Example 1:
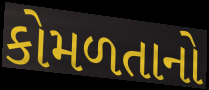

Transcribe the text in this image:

કોમળતાનો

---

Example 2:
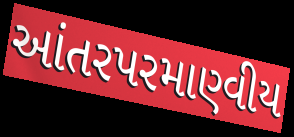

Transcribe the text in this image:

આંતરપરમાણ્વીય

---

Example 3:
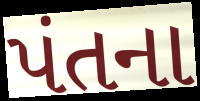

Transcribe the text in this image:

પંતના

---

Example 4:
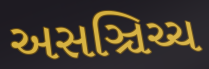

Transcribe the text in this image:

અસઞ્ચિચ્ચ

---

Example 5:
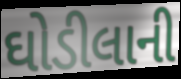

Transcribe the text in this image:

ઘોડીલાની